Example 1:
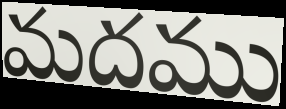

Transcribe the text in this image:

మదము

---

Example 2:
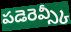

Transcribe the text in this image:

పడెరెవ్స్కీ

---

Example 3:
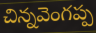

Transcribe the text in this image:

చిన్నవెంగప్ప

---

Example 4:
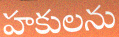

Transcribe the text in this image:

హకులను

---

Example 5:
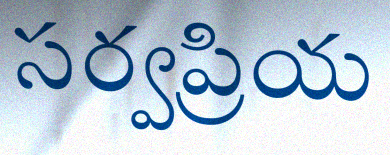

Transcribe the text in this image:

సర్వప్రియ